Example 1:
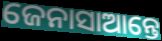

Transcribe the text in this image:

ଜେନାସାଆନ୍ତେ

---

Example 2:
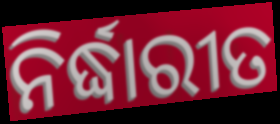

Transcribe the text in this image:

ନିର୍ଦ୍ଧାରୀତ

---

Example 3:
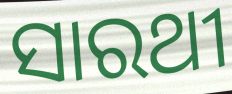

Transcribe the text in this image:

ସାରଥୀ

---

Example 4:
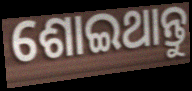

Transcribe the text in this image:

ଶୋଇଥାନ୍ତୁ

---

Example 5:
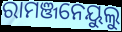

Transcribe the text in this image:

ରାମଞ୍ଜନେୟୁଲୁ